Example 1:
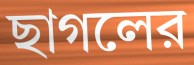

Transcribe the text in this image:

ছাগলের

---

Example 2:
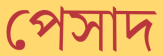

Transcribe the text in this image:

পেসাদ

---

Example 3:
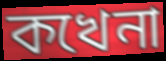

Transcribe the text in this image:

কখেনা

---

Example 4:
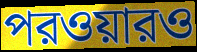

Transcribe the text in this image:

পরওয়ারও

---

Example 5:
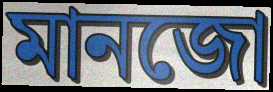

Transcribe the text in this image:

মানজো